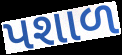
પશાળ